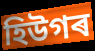
হিউগৰ